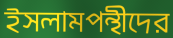
ইসলামপন্থীদের